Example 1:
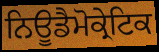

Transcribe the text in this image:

ਨਿਊਡੈਮੋਕ੍ਰੇਟਿਕ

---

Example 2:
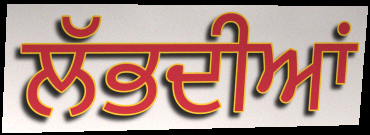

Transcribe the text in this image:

ਲੱਭਦੀਆਂ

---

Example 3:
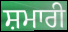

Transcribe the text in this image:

ਸ਼ਮਾਰੀ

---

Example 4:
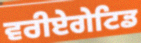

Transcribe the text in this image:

ਵਰੀਏਗੇਟਿਡ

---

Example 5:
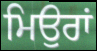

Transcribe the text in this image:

ਮਿਉਰਾਂ